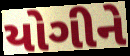
યોગીને